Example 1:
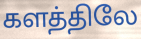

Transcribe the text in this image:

களத்திலே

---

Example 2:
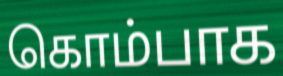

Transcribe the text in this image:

கொம்பாக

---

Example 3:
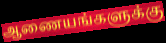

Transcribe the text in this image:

ஆணையங்களுக்கு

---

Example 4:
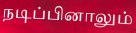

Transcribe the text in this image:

நடிப்பினாலும்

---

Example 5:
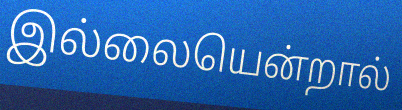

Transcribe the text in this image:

இல்லையென்றால்